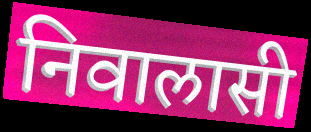
निवालासी